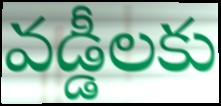
వడ్డీలకు